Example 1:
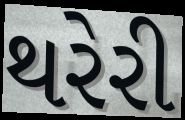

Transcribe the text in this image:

થરેરી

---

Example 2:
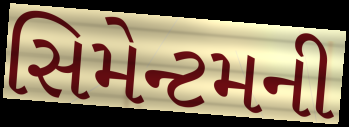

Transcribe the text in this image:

સિમેન્ટમની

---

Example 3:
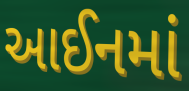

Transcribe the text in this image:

આઈનમાં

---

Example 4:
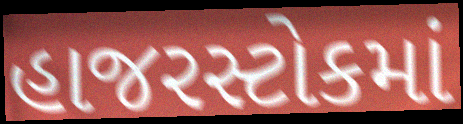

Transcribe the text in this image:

હાજરસ્ટોકમાં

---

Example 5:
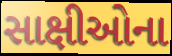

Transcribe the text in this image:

સાક્ષીઓના